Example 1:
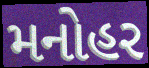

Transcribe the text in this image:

મનોહર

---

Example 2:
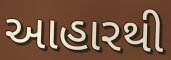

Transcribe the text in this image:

આહારથી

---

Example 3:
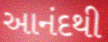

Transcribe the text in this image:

આનંદથી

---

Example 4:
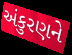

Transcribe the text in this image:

અંકુરણને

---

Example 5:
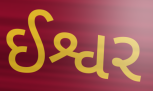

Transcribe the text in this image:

ઈશ્વર